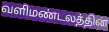
வளிமண்டலத்தின்